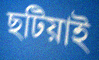
ছটিয়াই